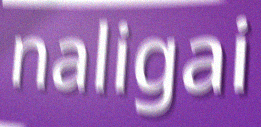
naligai